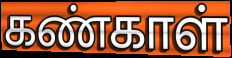
கண்காள்